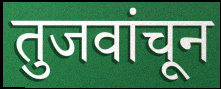
तुजवांचून